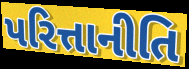
પરિત્તાનીતિ